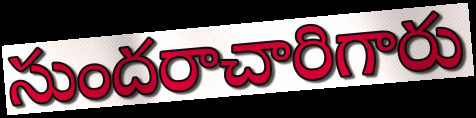
సుందరాచారిగారు